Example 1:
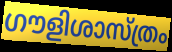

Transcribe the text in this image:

ഗൗളിശാസ്ത്രം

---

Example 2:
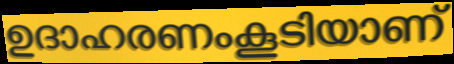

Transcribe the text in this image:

ഉദാഹരണംകൂടിയാണ്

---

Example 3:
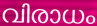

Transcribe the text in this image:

വിരാധം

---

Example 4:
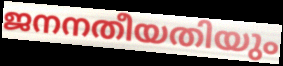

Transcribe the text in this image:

ജനനതീയതിയും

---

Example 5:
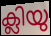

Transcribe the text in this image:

ക്ലിയു